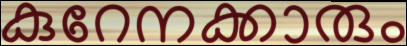
കുറേനക്കാരും